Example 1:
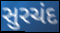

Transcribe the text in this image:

સુરચંદ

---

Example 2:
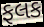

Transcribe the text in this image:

ફલક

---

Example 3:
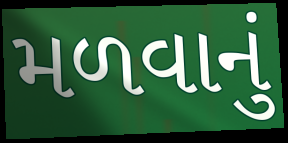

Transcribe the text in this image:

મળવાનું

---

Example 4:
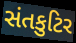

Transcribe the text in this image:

સંતકુટિર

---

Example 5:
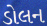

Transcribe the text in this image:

ડોલન